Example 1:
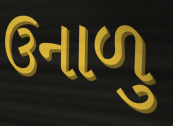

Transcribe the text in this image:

ઉનાળુ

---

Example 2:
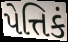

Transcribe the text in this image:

પેત્તિકં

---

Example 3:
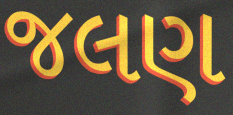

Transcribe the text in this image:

જલણ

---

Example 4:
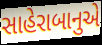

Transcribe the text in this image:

સાહેરાબાનુએ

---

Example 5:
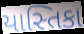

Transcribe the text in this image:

યાસ્તિકા